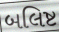
બલિષ્ટ